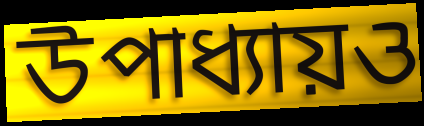
উপাধ্যায়ও